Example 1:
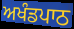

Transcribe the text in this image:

ਅਖੰਡਪਾਠ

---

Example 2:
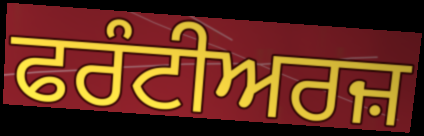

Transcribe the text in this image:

ਫਰੰਟੀਅਰਜ਼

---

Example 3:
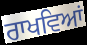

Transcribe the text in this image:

ਰਾਖਵਿਆਂ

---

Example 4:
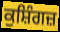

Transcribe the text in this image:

ਕੁਸ਼ਿੰਗਜ਼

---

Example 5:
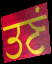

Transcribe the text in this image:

ਤਣਂ